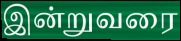
இன்றுவரை